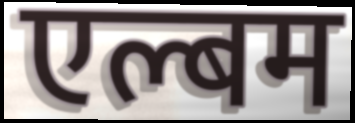
एल्बम